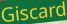
Giscard